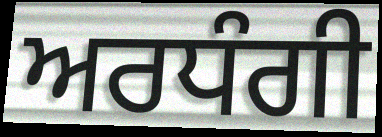
ਅਰਧੰਗੀ